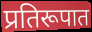
प्रतिरूपात